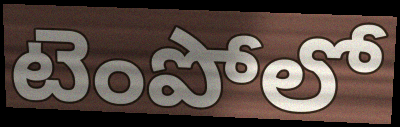
టెంపోలో